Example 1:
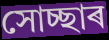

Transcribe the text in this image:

সোচ্ছাৰ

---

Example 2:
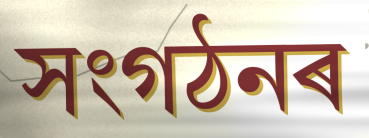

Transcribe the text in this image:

সংগঠনৰ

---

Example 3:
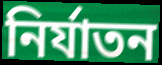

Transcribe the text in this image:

নিৰ্যাতন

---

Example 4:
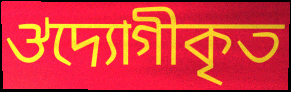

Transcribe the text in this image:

ঔদ্যোগীকৃত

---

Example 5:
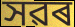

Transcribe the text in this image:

সৱৰ